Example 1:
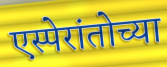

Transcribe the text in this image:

एस्पेरांतोच्या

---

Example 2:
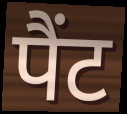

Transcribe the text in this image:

पैंट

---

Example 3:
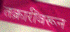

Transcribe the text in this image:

तक्रारींवरून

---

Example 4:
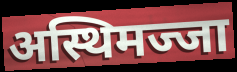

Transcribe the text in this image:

अस्थिमज्जा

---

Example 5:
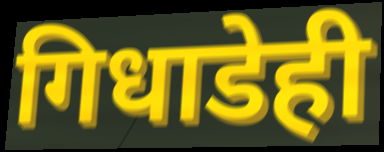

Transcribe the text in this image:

गिधाडेही